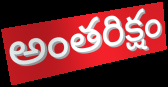
అంతరిక్షం